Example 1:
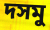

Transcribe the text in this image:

দসমু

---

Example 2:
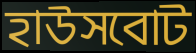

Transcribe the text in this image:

হাউসবোট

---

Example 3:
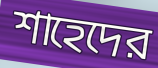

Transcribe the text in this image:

শাহেদের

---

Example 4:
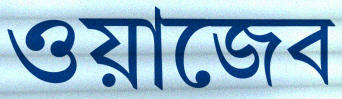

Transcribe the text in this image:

ওয়াজেব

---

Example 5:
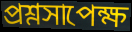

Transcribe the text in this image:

প্রশ্নসাপেক্ষ